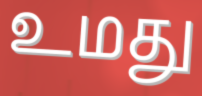
உமது